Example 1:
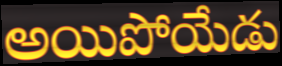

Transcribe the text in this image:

అయిపోయేడు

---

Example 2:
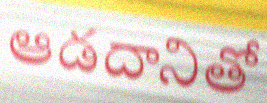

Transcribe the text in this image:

ఆడదానితో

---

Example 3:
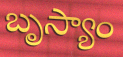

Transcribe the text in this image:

బృస్యాం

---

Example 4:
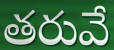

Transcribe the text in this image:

తరువే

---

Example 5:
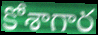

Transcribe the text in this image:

కోశాగార